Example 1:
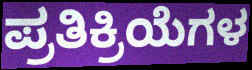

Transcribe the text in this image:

ಪ್ರತಿಕ್ರಿಯೆಗಳ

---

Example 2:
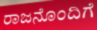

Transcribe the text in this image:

ರಾಜನೊಂದಿಗೆ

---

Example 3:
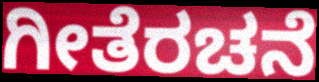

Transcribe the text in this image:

ಗೀತೆರಚನೆ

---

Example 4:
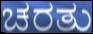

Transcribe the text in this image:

ಚರತು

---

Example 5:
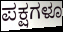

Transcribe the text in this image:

ಪಕ್ಷಗಳೂ